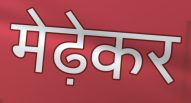
मेढ़ेकर